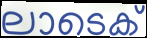
ലാടെക്